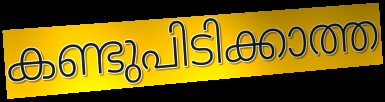
കണ്ടുപിടിക്കാത്ത